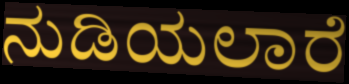
ನುಡಿಯಲಾರೆ